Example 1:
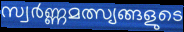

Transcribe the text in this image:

സ്വർണ്ണമത്സ്യങ്ങളുടെ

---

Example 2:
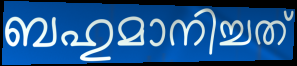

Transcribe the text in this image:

ബഹുമാനിച്ചത്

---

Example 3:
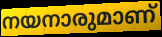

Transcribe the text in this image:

നയനാരുമാണ്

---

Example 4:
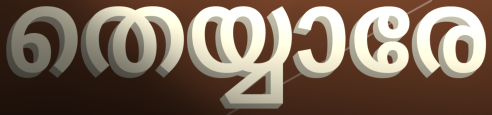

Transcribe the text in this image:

തെയ്യാരേ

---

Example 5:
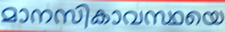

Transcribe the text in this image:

മാനസികാവസ്ഥയെ